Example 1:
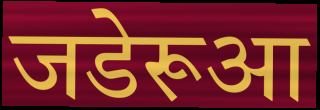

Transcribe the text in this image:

जडेरूआ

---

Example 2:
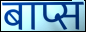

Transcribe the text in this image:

बाप्स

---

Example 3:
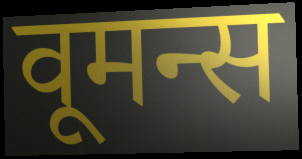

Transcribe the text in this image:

वूमन्स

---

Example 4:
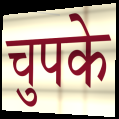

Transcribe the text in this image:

चुपके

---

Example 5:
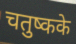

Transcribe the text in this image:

चतुष्कके